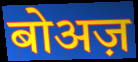
बोअज़